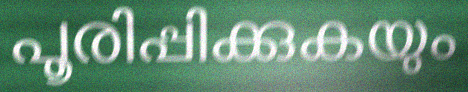
പൂരിപ്പിക്കുകയും